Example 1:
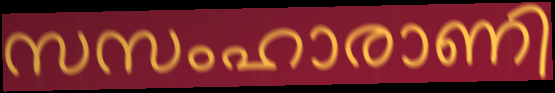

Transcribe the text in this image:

സസംഹാരാണി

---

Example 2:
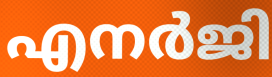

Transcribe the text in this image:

എനർജി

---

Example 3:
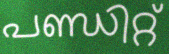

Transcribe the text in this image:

പണ്ഡിറ്റ്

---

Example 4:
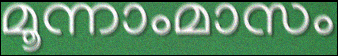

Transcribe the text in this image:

മൂന്നാംമാസം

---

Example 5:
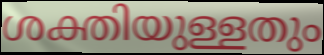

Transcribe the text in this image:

ശക്തിയുള്ളതും